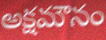
అక్షమౌనం